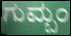
ಗುಮ್ಬಂ